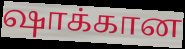
ஷாக்கான